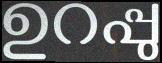
ഉറപ്പു